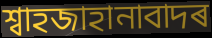
শ্বাহজাহানাবাদৰ